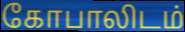
கோபாலிடம்